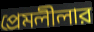
প্রেমলীলার